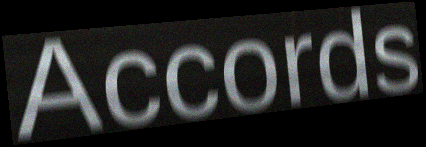
Accords